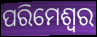
ପରିମେଶ୍ୱର